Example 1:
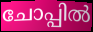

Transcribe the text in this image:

ചോപ്പിൽ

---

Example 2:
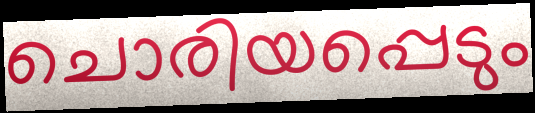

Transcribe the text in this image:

ചൊരിയപ്പെടും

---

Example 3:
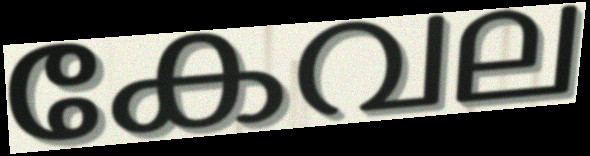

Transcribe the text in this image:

കേവല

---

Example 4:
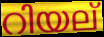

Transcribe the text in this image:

റിയല്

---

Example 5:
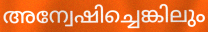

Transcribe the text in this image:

അന്വേഷിച്ചെങ്കിലും